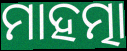
ମାହତ୍ମା